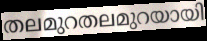
തലമുറതലമുറയായി